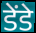
डेंडे